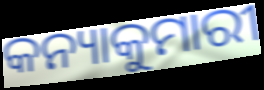
କନ୍ୟାକୁମାରୀ